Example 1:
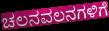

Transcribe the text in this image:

ಚಲನವಲನಗಳಿಗೆ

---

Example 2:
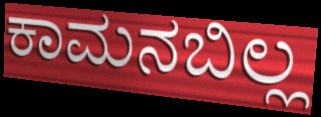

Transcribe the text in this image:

ಕಾಮನಬಿಲ್ಲ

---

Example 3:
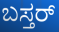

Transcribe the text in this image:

ಬಸ್ತರ್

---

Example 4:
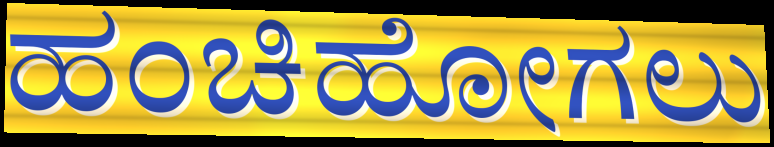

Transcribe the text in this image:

ಹಂಚಿಹೋಗಲು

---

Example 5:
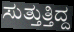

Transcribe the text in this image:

ಸುತ್ತುತ್ತಿದ್ದ